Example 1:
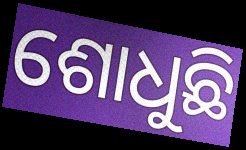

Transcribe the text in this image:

ଶୋଧୁଛି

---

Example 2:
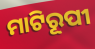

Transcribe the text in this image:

ମାଟିରୂପୀ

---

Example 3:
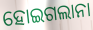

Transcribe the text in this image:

ହୋଇଗଲାନା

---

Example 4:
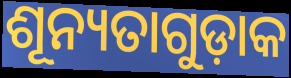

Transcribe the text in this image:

ଶୂନ୍ୟତାଗୁଡ଼ାକ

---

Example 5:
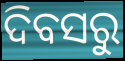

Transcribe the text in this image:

ଦିବସରୁ